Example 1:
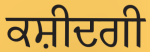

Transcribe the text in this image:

ਕਸ਼ੀਦਗੀ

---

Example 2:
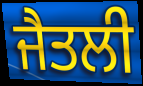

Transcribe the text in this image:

ਜੈਤਲੀ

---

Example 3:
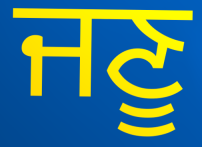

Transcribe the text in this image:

ਜਣੂ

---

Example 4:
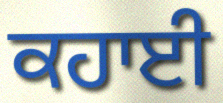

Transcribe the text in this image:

ਕਹਾਈ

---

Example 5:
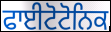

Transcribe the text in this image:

ਫਾਈਟੋਟੋਨਿਕ